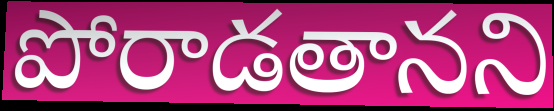
పోరాడతానని